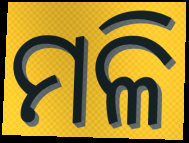
ମଳି